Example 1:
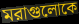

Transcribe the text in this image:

মরাগুলোকে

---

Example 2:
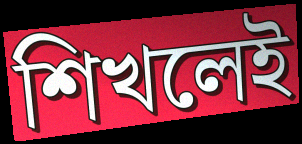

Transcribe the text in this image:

শিখলেই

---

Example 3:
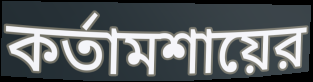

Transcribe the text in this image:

কর্তামশায়ের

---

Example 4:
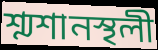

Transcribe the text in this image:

শ্মশানস্থলী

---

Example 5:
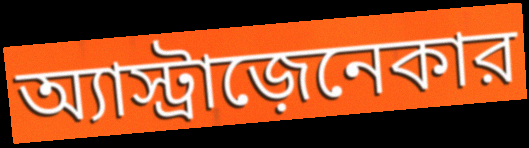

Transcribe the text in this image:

অ্যাস্ট্রাজ়েনেকার